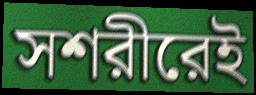
সশরীরেই